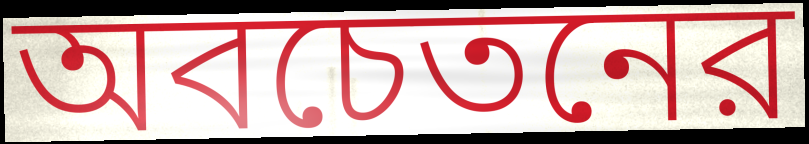
অবচেতনের